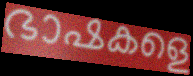
ഭാഷകളെ